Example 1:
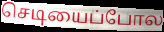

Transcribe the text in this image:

செடியைப்போல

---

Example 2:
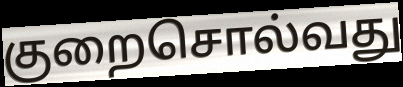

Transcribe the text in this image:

குறைசொல்வது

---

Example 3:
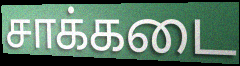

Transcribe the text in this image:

சாக்கடை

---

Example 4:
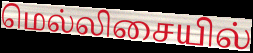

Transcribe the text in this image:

மெல்லிசையில்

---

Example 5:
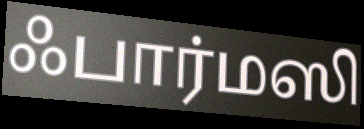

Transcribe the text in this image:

ஃபார்மஸி